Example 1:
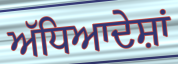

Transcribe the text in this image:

ਅੱਧਿਆਦੇਸ਼ਾਂ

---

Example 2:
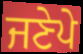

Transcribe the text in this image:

ਜਣੇਪੇ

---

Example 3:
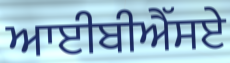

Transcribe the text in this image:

ਆਈਬੀਐੱਸਏ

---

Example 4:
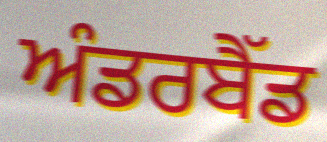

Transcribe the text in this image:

ਅੰਡਰਬੈੱਡ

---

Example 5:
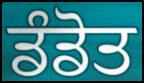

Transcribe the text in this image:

ਡੰਡੋਤ